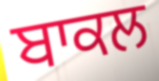
ਬਾਕਲ